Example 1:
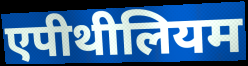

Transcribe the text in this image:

एपीथीलियम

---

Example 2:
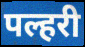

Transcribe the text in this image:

पल्हरी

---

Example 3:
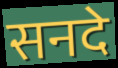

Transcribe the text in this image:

सनदे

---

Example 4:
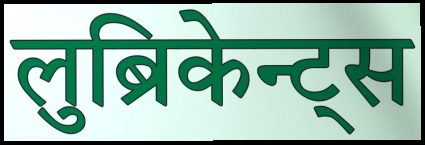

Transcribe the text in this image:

लुब्रिकेन्ट्स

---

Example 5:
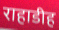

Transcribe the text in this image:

राहाडीह